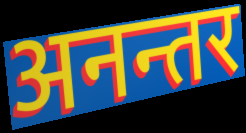
अनन्तर